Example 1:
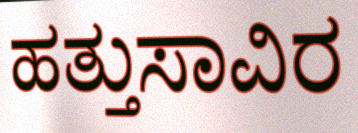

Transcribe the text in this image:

ಹತ್ತುಸಾವಿರ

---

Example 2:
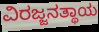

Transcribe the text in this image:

ವಿರಜ್ಜನತ್ಥಾಯ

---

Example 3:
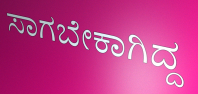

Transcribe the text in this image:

ಸಾಗಬೇಕಾಗಿದ್ದ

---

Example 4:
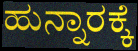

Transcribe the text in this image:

ಹುನ್ನಾರಕ್ಕೆ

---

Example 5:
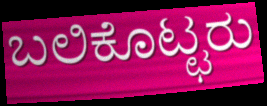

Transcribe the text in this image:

ಬಲಿಕೊಟ್ಟರು